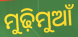
ମୁଢ଼ିମୁଆଁ